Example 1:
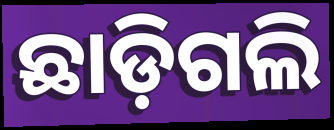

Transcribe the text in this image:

ଛାଡ଼ିଗଲି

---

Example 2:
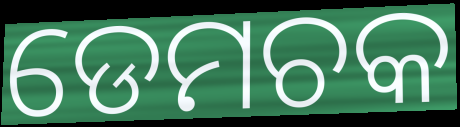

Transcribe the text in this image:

ଡେମଚକ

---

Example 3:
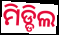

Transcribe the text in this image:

ମିଡ୍ଡିଲ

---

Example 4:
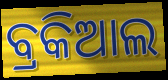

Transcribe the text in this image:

ବ୍ରକିଆଲ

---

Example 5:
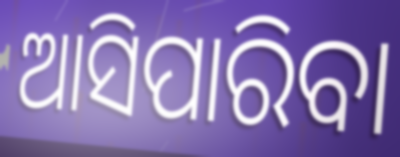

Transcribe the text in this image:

ଆସିପାରିବା